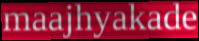
maajhyakade